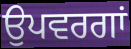
ਉਪਵਰਗਾਂ